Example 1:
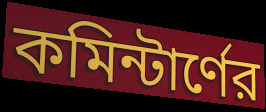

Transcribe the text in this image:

কমিন্টার্ণের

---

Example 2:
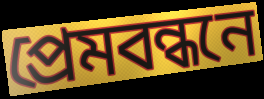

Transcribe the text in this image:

প্রেমবন্ধনে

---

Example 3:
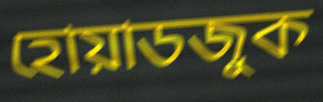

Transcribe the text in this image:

হোয়াডজুক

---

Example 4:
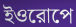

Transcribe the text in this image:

ইওরোপে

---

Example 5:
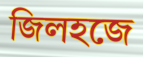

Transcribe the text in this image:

জিলহজে